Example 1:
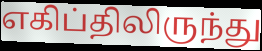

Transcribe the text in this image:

எகிப்திலிருந்து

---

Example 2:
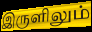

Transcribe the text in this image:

இருளிலும்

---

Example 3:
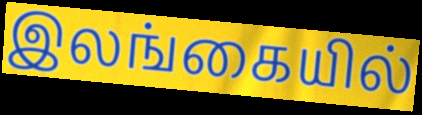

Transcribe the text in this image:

இலங்கையில்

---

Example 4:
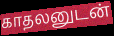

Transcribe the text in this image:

காதலனுடன்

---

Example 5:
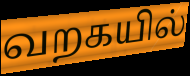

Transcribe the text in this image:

வறகயில்